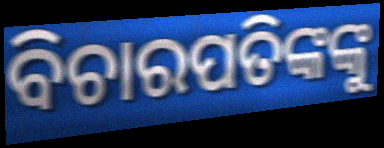
ବିଚାରପତିଙ୍କଙ୍କୁ